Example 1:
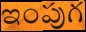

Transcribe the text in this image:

ఇంపుగ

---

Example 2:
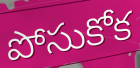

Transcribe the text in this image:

పోసుకోక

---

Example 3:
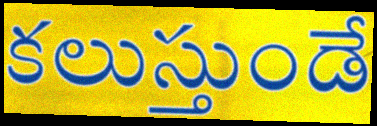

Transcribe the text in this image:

కలుస్తుండే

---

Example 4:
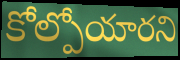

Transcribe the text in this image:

కోల్పోయారని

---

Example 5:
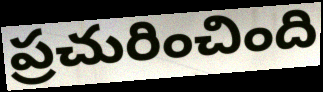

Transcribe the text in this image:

ప్రచురించింది